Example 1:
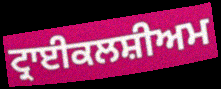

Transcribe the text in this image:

ਟ੍ਰਾਈਕਲਸ਼ੀਅਮ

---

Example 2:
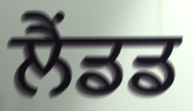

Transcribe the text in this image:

ਲੈਂਡਡ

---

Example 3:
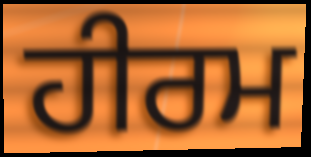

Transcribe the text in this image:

ਹੀਰਮ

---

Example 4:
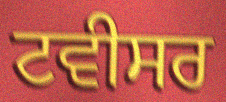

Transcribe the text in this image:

ਟਵੀਸਰ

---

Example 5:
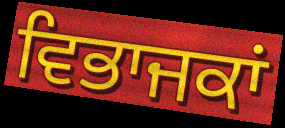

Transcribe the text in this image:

ਵਿਭਾਜਕਾਂ